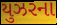
યુઝરના